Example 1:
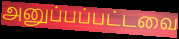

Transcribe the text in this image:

அனுப்பப்பட்டவை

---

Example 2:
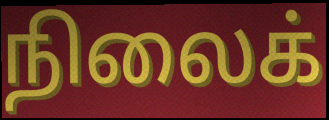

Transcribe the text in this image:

நிலைக்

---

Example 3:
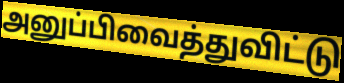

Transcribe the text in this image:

அனுப்பிவைத்துவிட்டு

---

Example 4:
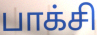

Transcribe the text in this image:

பாக்சி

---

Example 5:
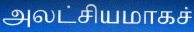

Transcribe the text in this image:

அலட்சியமாகச்